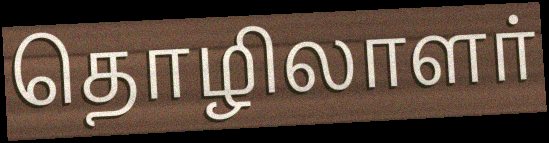
தொழிலாளர்